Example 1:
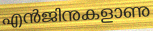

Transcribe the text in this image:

എൻജിനുകളാണു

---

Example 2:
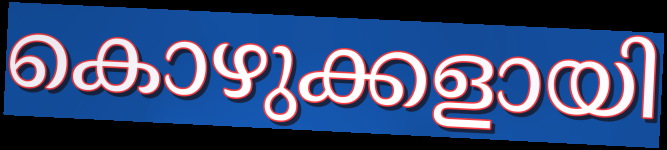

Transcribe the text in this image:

കൊഴുക്കളായി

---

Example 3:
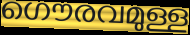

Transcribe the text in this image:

ഗൌരവമുള്ള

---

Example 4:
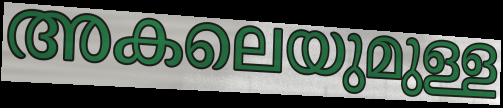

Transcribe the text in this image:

അകലെയുമുള്ള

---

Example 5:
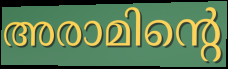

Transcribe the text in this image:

അരാമിന്റെ